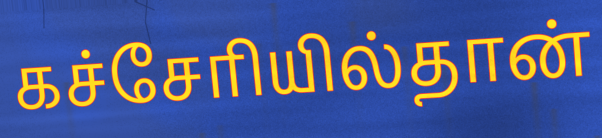
கச்சேரியில்தான்